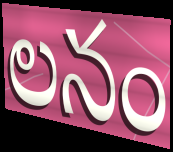
లనం